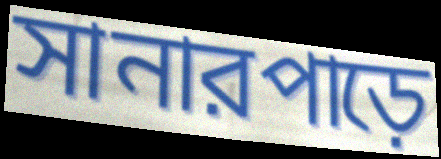
সানারপাড়ে